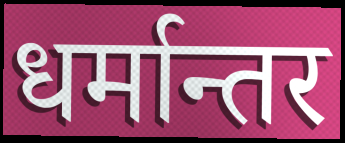
धर्मान्तर